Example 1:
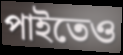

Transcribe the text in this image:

পাইতেও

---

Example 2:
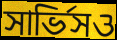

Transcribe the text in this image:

সার্ভিসও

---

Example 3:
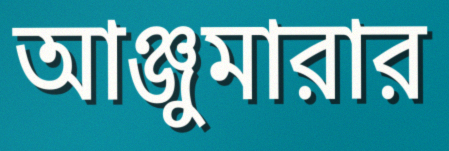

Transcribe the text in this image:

আঞ্জুমারার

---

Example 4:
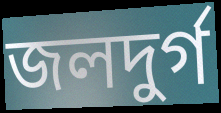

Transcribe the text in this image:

জলদুর্গ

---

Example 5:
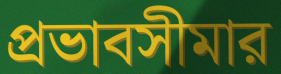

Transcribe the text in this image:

প্রভাবসীমার